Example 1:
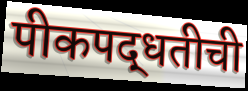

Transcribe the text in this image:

पीकपद्धतीची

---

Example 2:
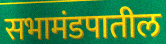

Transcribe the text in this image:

सभामंडपातील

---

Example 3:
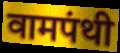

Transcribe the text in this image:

वामपंथी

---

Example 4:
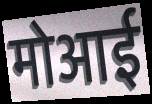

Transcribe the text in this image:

मोआई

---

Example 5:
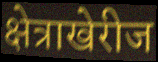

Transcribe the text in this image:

क्षेत्राखेरीज